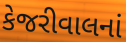
કેજરીવાલનાં